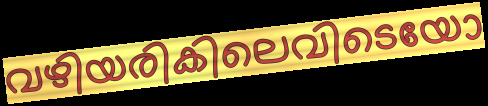
വഴിയരികിലെവിടെയോ